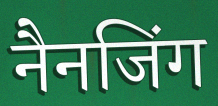
नैनजिंग